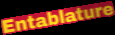
Entablature